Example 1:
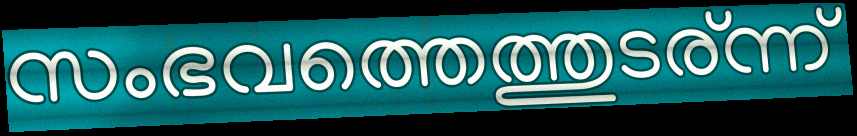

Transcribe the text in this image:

സംഭവത്തെത്തുടര്ന്ന്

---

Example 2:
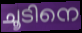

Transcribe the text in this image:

ചൂടിനെ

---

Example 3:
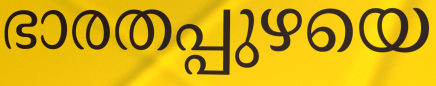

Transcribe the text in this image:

ഭാരതപ്പുഴയെ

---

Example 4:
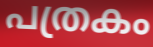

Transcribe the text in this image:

പത്രകം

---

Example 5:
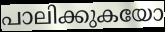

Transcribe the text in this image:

പാലിക്കുകയോ